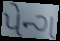
પેન્ગ